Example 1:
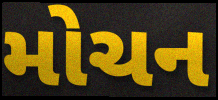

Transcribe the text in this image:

મોચન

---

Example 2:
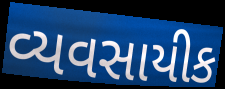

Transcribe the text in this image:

વ્યવસાયીક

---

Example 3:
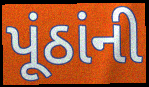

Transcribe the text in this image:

પૂંઠાંની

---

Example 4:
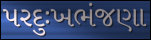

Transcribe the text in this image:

પરદુઃખભંજણા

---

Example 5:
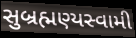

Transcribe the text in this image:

સુબ્રહ્મણ્યસ્વામી